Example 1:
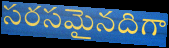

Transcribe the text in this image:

సరసమైనదిగా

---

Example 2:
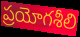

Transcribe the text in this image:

ప్రయోగశీలి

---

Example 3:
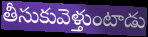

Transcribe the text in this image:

తీసుకువెళ్తుంటాడు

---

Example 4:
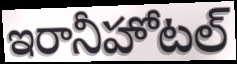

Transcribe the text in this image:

ఇరానీహోటల్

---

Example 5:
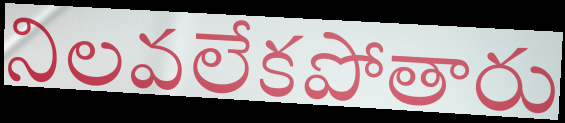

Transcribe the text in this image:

నిలవలేకపోతారు